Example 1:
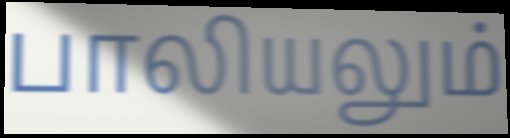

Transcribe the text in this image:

பாலியலும்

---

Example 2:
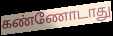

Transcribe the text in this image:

கண்ணோடாது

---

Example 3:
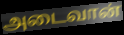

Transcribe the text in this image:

அடைவான்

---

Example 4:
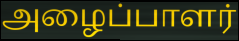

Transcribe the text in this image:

அழைப்பாளர்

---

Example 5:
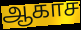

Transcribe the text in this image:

ஆகாச